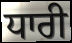
ਧਾਰੀ